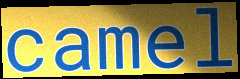
camel